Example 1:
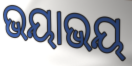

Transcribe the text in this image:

ଭୟାଭୟ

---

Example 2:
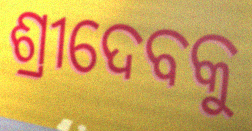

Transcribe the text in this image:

ଶ୍ରୀଦେବକୁ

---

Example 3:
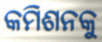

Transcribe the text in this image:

କମିଶନକୁ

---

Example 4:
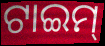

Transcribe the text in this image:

ଟାଇମ୍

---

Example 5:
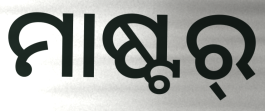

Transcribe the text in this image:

ମାଷ୍ଟର୍